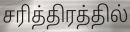
சரித்திரத்தில்